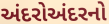
અંદરોઅંદરનો